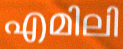
എമിലി